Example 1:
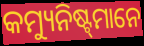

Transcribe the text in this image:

କମ୍ୟୁନିଷ୍ଟ୍‌ମାନେ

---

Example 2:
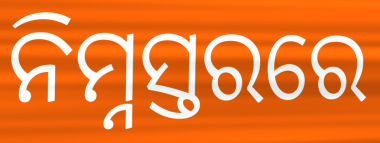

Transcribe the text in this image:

ନିମ୍ନସ୍ତରରେ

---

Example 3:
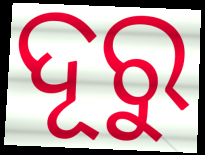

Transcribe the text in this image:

ଦୂରୁ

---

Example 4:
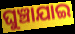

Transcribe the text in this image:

ଘୁଞ୍ଚାଯାଇ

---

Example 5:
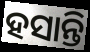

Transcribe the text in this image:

ହସାନ୍ତି